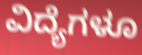
ವಿದ್ಯೆಗಳೂ